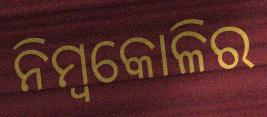
ନିମ୍ବକୋଳିର